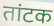
तांटक